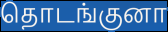
தொடங்குனா